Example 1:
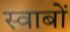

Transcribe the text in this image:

स्वाबों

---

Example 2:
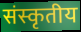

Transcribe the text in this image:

संस्कृतीय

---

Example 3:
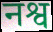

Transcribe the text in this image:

नश्व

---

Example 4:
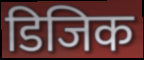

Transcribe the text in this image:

डिजिक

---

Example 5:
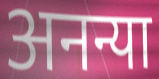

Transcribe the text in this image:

अनन्या